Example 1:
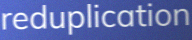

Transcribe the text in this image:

reduplication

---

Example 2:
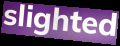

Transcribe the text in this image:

slighted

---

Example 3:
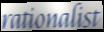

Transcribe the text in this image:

rationalist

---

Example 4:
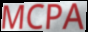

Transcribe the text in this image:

MCPA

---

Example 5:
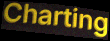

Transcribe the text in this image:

Charting